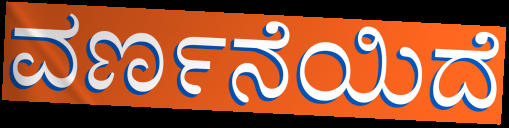
ವರ್ಣನೆಯಿದೆ